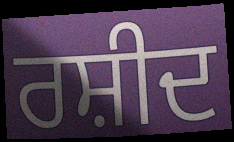
ਰਸ਼ੀਦ